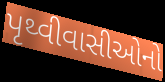
પૃથ્વીવાસીઓનો